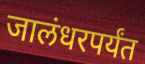
जालंधरपर्यंत